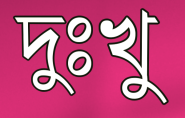
দুঃখু